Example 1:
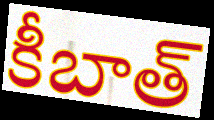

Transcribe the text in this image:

కీబాత్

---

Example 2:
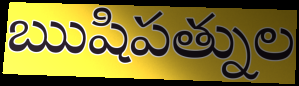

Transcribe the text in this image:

ఋషిపత్నుల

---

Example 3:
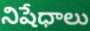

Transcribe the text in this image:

నిషేధాలు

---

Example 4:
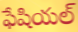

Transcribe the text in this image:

ఫేషియల్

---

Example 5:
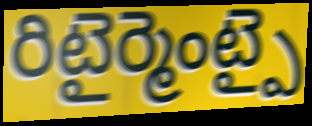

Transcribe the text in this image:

రిటైర్మెంట్పై